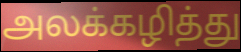
அலக்கழித்து